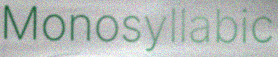
Monosyllabic